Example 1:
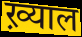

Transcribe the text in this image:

ख़्याल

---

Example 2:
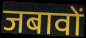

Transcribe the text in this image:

जबावों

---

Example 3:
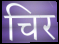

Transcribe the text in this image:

चिर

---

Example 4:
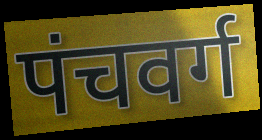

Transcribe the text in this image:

पंचवर्ग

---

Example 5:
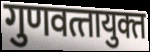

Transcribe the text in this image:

गुणवत्‍तायुक्‍त